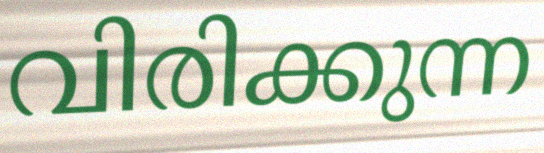
വിരിക്കുന്ന